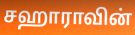
சஹாராவின்